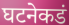
घटनेकडं